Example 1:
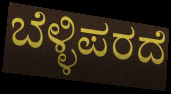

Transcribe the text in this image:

ಬೆಳ್ಳಿಪರದೆ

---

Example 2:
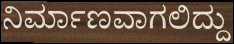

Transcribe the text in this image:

ನಿರ್ಮಾಣವಾಗಲಿದ್ದು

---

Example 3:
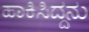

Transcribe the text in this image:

ಹಾಕಿಸಿದ್ದನು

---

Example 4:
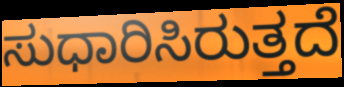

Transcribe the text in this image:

ಸುಧಾರಿಸಿರುತ್ತದೆ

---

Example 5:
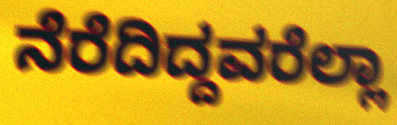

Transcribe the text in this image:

ನೆರೆದಿದ್ದವರೆಲ್ಲಾ